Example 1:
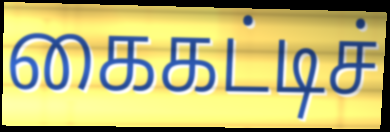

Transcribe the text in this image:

கைகட்டிச்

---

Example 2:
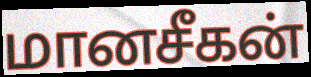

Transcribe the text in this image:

மானசீகன்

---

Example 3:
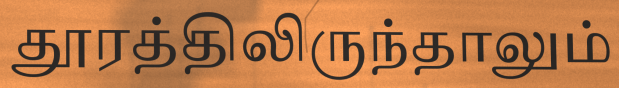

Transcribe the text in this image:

தூரத்திலிருந்தாலும்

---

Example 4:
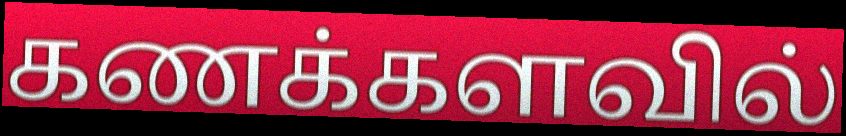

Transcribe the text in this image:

கணக்களவில்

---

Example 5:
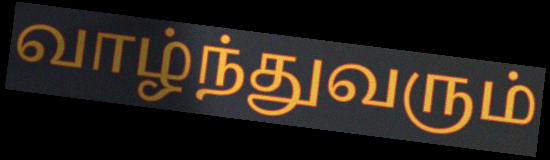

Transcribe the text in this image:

வாழ்ந்துவரும்